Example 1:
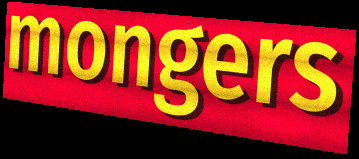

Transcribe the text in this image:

mongers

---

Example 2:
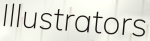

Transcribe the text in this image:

Illustrators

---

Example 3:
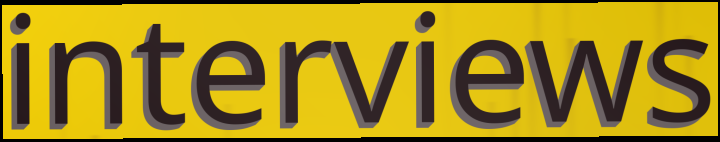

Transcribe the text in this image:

interviews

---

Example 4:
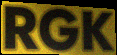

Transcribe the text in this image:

RGK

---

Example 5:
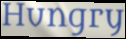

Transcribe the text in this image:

Hungry